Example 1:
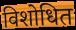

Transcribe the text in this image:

विशोधित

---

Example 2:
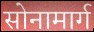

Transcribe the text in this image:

सोनामार्ग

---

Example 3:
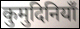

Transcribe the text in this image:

कुमुदिनियाँ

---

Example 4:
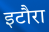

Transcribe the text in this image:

इटौरा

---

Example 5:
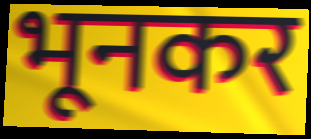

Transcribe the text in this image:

भूनकर